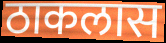
ठाकलास